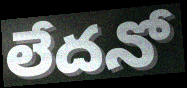
లేదనో